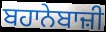
ਬਹਾਨੇਬਾਜ਼ੀ